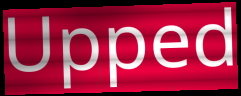
Upped